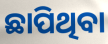
ଛାପିଥିବା